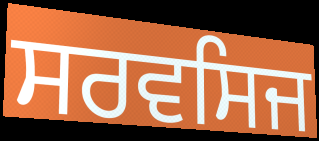
ਸਰਵਸਿਜ